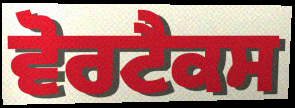
ਵੋਰਟੈਕਸ